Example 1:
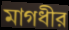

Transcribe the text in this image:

মাগধীর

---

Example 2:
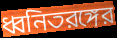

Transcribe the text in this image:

ধ্বনিতরঙ্গের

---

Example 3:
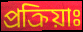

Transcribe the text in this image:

প্রক্রিয়াঃ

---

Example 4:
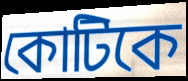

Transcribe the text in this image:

কোটিকে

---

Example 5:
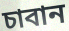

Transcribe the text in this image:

চাবান